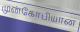
முன்கோபியான